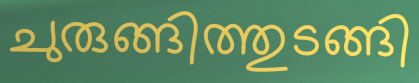
ചുരുങ്ങിത്തുടങ്ങി